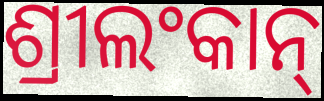
ଶ୍ରୀଲଂକାନ୍